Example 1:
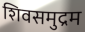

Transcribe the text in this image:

शिवसमुद्रम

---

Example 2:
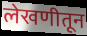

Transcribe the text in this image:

लेखणीतून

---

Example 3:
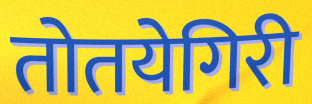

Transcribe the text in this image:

तोतयेगिरी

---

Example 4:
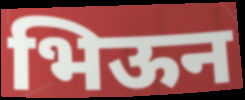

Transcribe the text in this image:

भिऊन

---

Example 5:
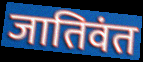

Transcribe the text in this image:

जातिवंत